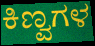
ಕಿಣ್ವಗಳ